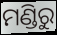
ମଣ୍ଡିରୁ